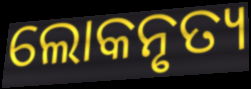
ଲୋକନୃତ୍ଯ